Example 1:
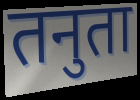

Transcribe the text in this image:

तनुता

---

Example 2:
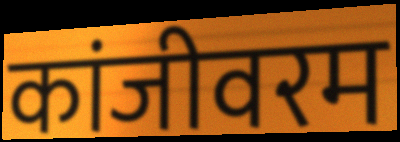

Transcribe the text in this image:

कांजीवरम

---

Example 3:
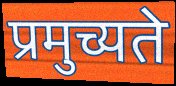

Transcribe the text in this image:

प्रमुच्यते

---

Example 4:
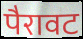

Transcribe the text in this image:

पैरावट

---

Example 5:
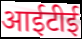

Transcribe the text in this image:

आईटीई